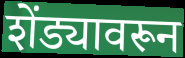
शेंड्यावरून